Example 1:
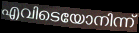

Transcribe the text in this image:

എവിടെയോനിന്ന്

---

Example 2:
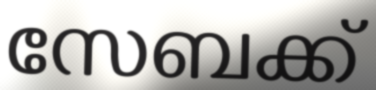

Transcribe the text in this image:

സേബക്ക്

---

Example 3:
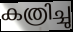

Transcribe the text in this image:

കത്രിച്ചു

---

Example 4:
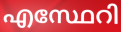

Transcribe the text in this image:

എസ്ഥേറി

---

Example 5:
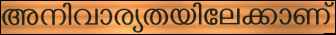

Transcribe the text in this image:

അനിവാര്യതയിലേക്കാണ്